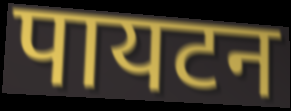
पायटन